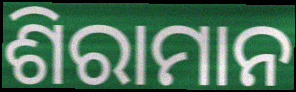
ଶିରାମାନ